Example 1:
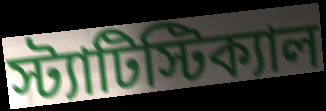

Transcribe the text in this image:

স্ট্যাটিস্টিক্যাল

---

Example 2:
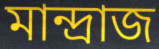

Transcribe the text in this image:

মান্দ্রাজ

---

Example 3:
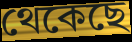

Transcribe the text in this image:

থেকেছে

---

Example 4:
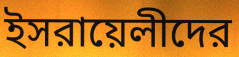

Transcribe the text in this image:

ইসরায়েলীদের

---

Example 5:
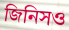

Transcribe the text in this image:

জিনিসও